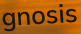
gnosis